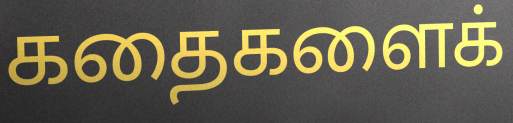
கதைகளைக்